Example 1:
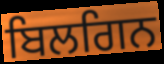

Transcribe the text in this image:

ਬਿਲਗਿਨ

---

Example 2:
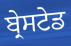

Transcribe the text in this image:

ਬ੍ਰੇਸਟੇਡ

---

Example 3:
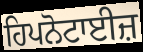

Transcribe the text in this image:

ਹਿਪਨੋਟਾਈਜ਼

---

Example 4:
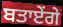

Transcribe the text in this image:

ਬਤਾਏਂਗੇ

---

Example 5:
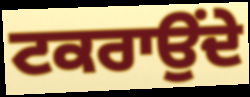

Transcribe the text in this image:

ਟਕਰਾਉਂਦੇ